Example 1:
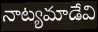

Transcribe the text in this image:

నాట్యమాడేవి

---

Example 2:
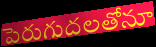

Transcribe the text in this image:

పెరుగుదలతోనూ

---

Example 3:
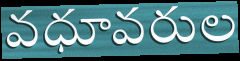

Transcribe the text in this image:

వధూవరుల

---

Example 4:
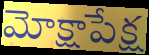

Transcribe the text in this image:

మోక్షాపేక్ష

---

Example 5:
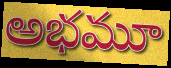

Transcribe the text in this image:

అభమూ